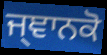
ਜ੍ਞਾਨਕੋ